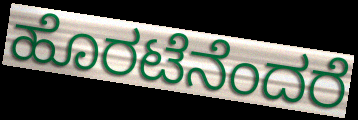
ಹೊರಟೆನೆಂದರೆ